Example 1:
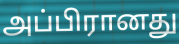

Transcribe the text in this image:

அப்பிரானது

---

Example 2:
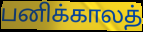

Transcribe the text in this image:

பனிக்காலத்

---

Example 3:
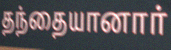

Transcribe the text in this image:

தந்தையானார்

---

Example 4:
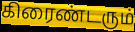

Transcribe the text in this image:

கிரைண்டரும்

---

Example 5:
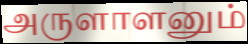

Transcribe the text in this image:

அருளாளனும்